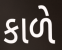
કાળે